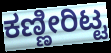
ಕಣ್ಣೀರಿಟ್ಟ